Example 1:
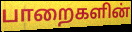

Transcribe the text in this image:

பாறைகளின்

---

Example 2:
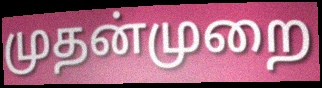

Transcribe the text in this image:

முதன்முறை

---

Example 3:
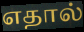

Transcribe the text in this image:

எதால்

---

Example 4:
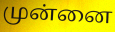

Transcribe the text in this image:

முன்னை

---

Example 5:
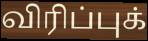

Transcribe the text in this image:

விரிப்புக்